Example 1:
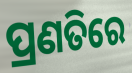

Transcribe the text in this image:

ପ୍ରଣତିରେ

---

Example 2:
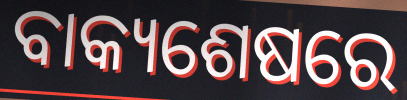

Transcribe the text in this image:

ବାକ୍ୟଶେଷରେ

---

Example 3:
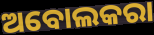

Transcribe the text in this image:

ଅବୋଲକରା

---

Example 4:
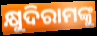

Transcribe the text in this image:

କ୍ଷୁଦିରାମଙ୍କୁ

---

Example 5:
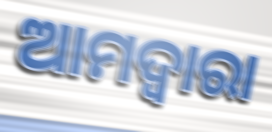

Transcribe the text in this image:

ଆମଦ୍ୱାରା